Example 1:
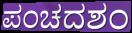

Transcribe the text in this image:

ಪಂಚದಶಂ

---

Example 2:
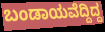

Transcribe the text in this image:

ಬಂಡಾಯವೆದ್ದಿದ್ದ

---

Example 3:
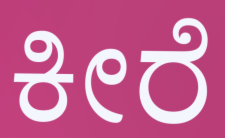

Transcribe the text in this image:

ಕೀರೆ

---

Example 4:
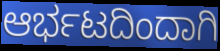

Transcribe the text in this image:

ಆರ್ಭಟದಿಂದಾಗಿ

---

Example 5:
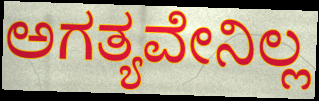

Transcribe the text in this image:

ಅಗತ್ಯವೇನಿಲ್ಲ